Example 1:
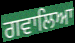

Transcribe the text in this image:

ਗਵਾਲਿਆ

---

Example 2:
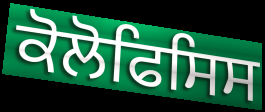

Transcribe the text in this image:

ਕੋਲੋਫਿਸਿਸ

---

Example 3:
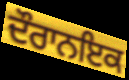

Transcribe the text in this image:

ਦੌਰਾਨਇਕ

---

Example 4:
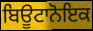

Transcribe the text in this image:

ਬਿਊਟਾਨੋਇਕ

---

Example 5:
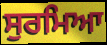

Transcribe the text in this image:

ਸੁਰਮਿਆ